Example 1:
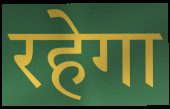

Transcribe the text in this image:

रहेगा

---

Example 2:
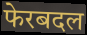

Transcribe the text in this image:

फेरबदल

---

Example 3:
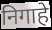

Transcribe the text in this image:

निगाहे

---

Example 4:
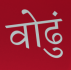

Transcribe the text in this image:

वोढुं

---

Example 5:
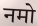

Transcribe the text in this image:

नमो